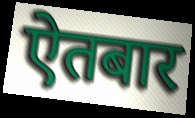
ऐतबार